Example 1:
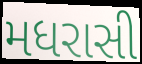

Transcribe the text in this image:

મધરાસી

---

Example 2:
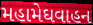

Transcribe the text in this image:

મહામેઘવાહન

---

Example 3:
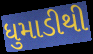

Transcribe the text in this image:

ધુમાડીથી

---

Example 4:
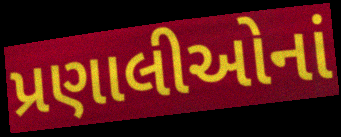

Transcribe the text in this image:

પ્રણાલીઓનાં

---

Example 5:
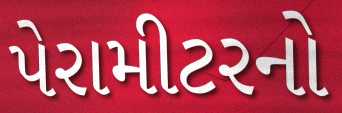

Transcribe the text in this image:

પેરામીટરનો